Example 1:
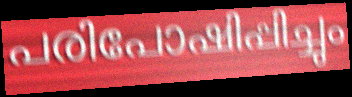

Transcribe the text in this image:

പരിപോഷിപ്പിച്ചും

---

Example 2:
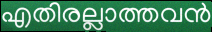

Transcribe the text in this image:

എതിരല്ലാത്തവൻ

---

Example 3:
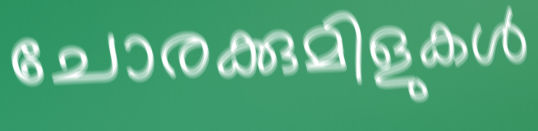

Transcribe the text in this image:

ചോരക്കുമിളുകൾ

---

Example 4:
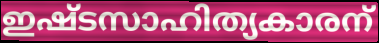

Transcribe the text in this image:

ഇഷ്ടസാഹിത്യകാരന്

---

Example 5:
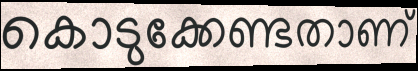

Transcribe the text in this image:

കൊടുക്കേണ്ടതാണ്